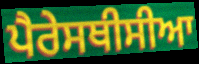
ਪੈਰੇਸਥੀਸੀਆ